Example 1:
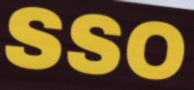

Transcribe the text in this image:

SSO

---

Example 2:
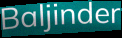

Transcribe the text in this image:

Baljinder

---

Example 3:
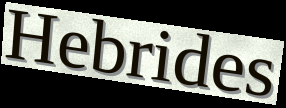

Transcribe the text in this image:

Hebrides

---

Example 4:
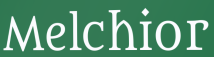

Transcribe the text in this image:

Melchior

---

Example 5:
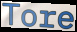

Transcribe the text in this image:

Tore